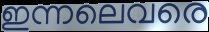
ഇന്നലെവരെ